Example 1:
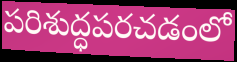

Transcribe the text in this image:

పరిశుద్ధపరచడంలో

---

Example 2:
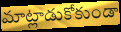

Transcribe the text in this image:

మాట్లాడుకోకుండా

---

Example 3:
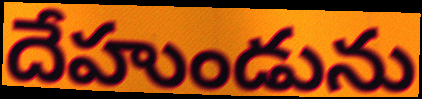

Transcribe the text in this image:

దేహుండును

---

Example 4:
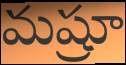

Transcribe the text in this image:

మష్రూ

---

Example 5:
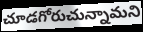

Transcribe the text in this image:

చూడగోరుచున్నామని